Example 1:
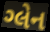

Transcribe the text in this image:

ગ્લેન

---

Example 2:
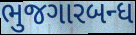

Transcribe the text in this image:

ભુજગારબન્ધ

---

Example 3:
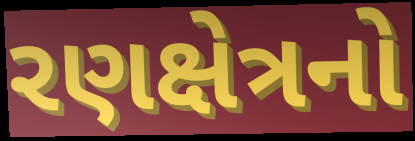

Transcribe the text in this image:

રણક્ષેત્રનો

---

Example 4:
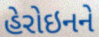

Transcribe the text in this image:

હેરોઇનને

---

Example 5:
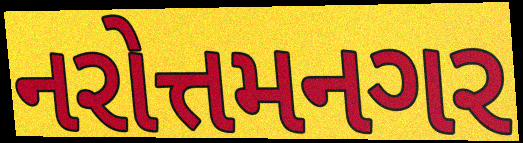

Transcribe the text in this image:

નરોત્તમનગર